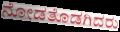
ನೋಡತೊಡಗಿದರು